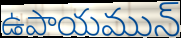
ఉపాయమున్